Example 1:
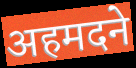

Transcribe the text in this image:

अहमदने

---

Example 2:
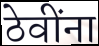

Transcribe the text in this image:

ठेवींना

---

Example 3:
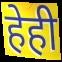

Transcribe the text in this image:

हेही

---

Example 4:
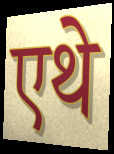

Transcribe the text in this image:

एथे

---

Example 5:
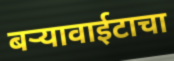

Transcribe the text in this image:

बऱ्यावाईटाचा